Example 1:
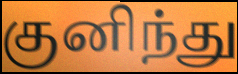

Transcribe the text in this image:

குனிந்து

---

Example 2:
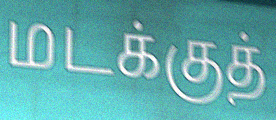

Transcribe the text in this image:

மடக்குத்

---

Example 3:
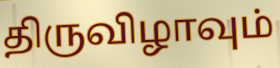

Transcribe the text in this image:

திருவிழாவும்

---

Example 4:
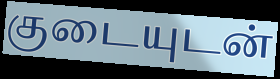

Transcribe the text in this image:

குடையுடன்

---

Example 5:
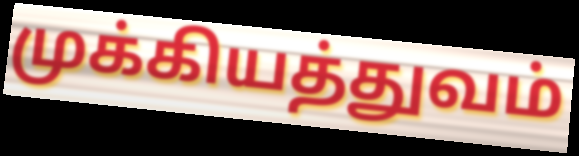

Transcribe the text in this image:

முக்கியத்துவம்